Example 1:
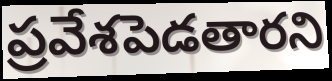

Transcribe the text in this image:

ప్రవేశపెడతారని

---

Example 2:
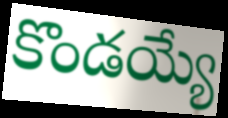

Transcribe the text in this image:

కొండయ్యే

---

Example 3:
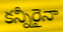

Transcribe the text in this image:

కన్నీరైనా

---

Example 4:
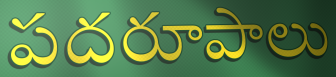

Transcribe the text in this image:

పదరూపాలు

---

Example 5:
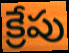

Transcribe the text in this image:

క్రేపు